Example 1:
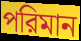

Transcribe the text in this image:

পরিমান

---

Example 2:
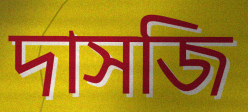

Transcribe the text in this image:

দাসজি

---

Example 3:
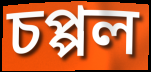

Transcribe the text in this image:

চপ্পল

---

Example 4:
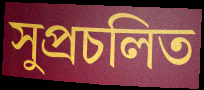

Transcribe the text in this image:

সুপ্রচলিত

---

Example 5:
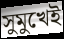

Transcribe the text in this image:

সুমুখেই